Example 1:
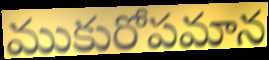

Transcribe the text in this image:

ముకురోపమాన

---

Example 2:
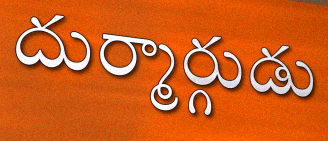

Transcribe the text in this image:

దుర్మార్గుడు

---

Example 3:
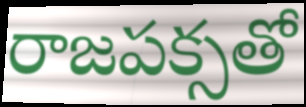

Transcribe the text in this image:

రాజపక్సతో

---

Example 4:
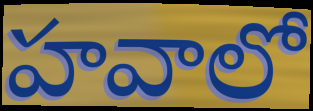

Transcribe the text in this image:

హవాలో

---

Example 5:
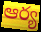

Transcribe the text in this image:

ఆర్య